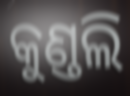
କୁଣ୍ଡଲି